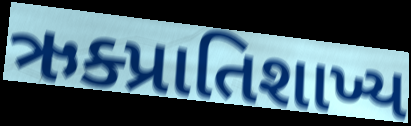
ઋક્પ્રાતિશાખ્ય